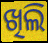
ଖିଲି